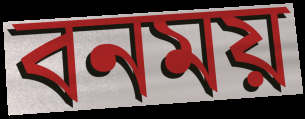
বনময়